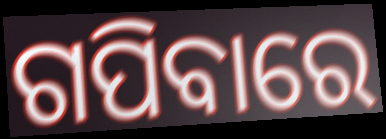
ଗପିବାରେ